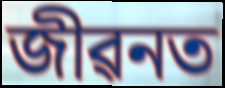
জীৱনত